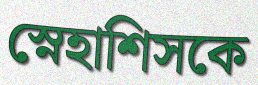
স্নেহাশিসকে